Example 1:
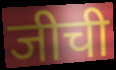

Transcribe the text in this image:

जीची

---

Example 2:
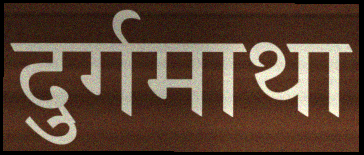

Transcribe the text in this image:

दुर्गमाथा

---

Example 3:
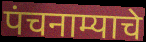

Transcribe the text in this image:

पंचनाम्याचे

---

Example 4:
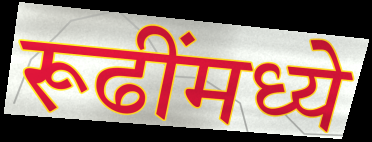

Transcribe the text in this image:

रूढींमध्ये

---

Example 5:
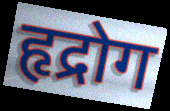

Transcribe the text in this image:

हृद्रोग